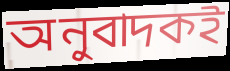
অনুবাদকই